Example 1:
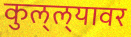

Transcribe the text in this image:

कुल्ल्यावर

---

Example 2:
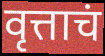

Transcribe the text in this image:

वृत्ताचं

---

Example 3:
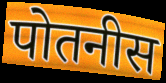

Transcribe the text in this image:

पोतनीस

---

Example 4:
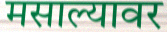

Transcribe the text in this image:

मसाल्यावर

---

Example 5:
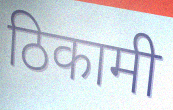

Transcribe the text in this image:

ठिकामी